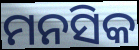
ମନସିକ